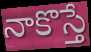
నాకొస్తే